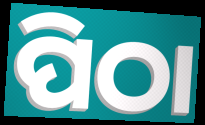
ପିଠା